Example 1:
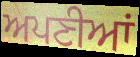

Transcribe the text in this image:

ਅਪਣੀਆਂ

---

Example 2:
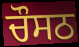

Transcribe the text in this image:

ਚੌਸਠ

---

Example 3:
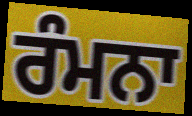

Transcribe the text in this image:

ਰੰਮਨਾ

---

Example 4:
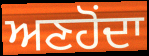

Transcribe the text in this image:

ਅਣਹੋਂਦਾ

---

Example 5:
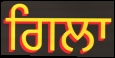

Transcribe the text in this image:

ਗਿਲਾ